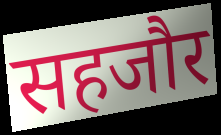
सहजौर